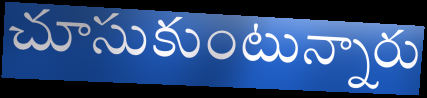
చూసుకుంటున్నారు